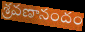
శ్రవణానందం